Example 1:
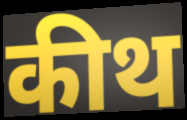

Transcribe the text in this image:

कीथ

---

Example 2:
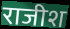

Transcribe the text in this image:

राजीश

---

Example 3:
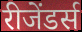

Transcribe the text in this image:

रीजेंडर्स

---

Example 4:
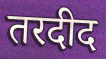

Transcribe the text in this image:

तरदीद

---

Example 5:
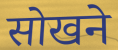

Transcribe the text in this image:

सोखने